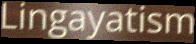
Lingayatism